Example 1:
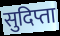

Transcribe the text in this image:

सुदिप्ता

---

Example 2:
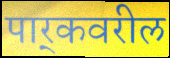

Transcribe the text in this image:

पार्कवरील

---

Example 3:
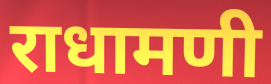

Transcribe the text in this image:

राधामणी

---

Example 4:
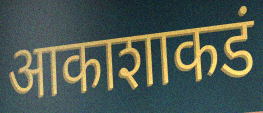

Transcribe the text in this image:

आकाशाकडं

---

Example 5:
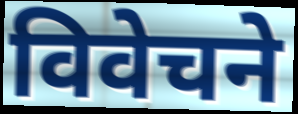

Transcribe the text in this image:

विवेचने